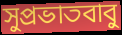
সুপ্রভাতবাবু